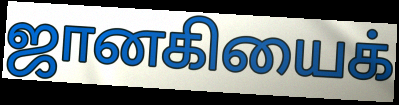
ஜானகியைக்